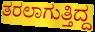
ತರಲಾಗುತ್ತಿದ್ದ